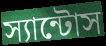
স্যান্টোস